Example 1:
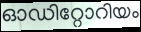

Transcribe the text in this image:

ഓഡിറ്റോറിയം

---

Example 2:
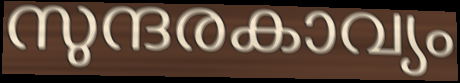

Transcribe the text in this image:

സുന്ദരകാവ്യം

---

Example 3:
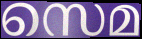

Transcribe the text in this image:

സെമ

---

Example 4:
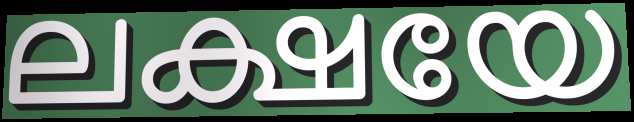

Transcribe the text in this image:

ലക്ഷയേ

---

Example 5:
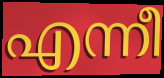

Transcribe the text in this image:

എന്നീ